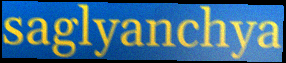
saglyanchya